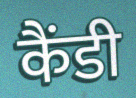
कैंडी